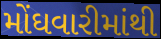
મોંઘવારીમાંથી